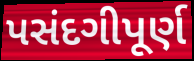
પસંદગીપૂર્ણ